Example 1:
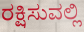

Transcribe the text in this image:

ರಕ್ಷಿಸುವಲ್ಲಿ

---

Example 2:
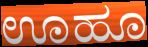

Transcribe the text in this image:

ಊಹೂ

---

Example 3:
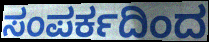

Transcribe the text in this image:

ಸಂಪರ್ಕದಿಂದ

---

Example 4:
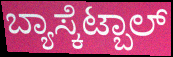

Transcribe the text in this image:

ಬ್ಯಾಸ್ಕೆಟ್ಬಾಲ್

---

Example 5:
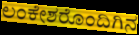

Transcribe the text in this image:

ಲಂಕೇಶರೊಂದಿಗಿನ